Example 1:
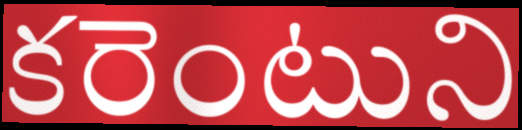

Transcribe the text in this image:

కరెంటుని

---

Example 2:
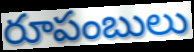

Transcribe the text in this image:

రూపంబులు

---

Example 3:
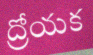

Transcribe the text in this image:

ద్రోయక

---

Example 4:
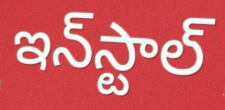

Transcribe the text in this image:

ఇన్‌స్టాల్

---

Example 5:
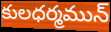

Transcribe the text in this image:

కులధర్మమున్